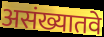
असंख्यातवे